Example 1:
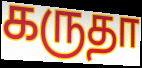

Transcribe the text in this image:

கருதா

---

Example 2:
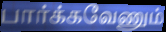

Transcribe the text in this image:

பார்க்கவேணும்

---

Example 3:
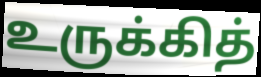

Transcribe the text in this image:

உருக்கித்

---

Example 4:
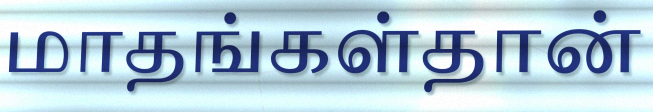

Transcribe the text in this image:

மாதங்கள்தான்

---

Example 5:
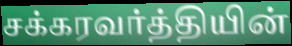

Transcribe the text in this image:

சக்கரவர்த்தியின்